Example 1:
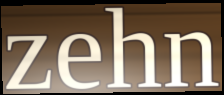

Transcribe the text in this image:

zehn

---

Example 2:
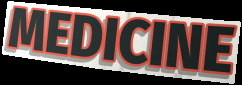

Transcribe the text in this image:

MEDICINE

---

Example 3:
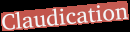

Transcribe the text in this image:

Claudication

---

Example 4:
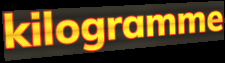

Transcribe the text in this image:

kilogramme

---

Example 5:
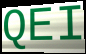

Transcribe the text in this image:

QEI